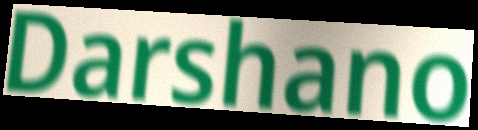
Darshano